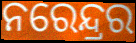
ନରେନ୍ଦ୍ରର